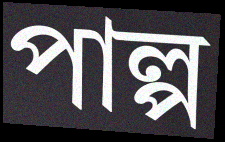
পাল্প